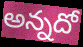
అన్నదో